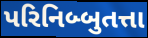
પરિનિબ્બુતત્તા